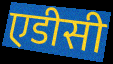
एडीसी